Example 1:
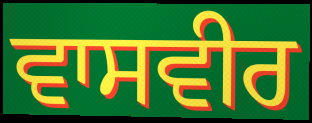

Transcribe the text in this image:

ਵਾਸਵੀਰ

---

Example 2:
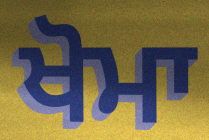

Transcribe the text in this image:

ਖੋਮਾ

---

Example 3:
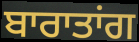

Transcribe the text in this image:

ਬਾਰਾਤਾਂਗ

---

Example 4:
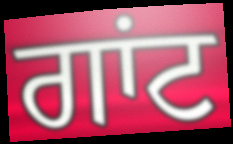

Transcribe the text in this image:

ਗਾਂਟ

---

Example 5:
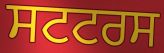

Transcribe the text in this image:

ਸਟਟਰਸ